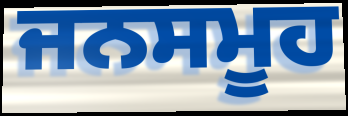
ਜਨਸਮੂਹ